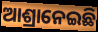
ଆଶ୍ରାନେଇଛି